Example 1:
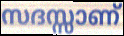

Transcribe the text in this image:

സദസ്സാണ്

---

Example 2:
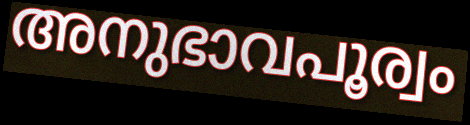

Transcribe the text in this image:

അനുഭാവപൂര്വം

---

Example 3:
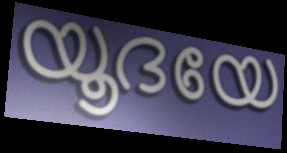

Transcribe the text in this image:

യൂദയേ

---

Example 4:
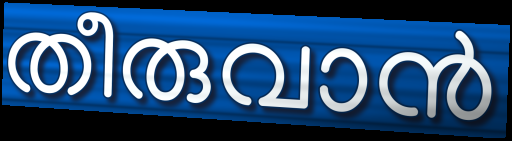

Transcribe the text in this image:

തീരുവാൻ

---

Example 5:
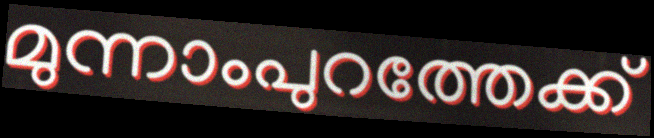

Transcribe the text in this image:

മുന്നാംപുറത്തേക്ക്